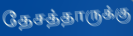
தேசத்தாருக்கு